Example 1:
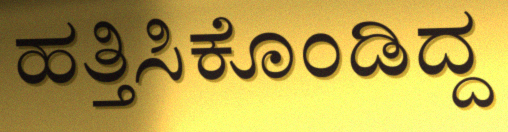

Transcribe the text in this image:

ಹತ್ತಿಸಿಕೊಂಡಿದ್ದ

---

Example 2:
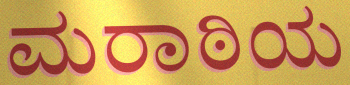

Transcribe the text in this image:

ಮರಾಠಿಯ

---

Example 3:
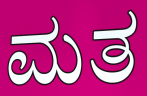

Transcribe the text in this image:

ಮತ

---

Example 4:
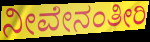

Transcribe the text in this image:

ನೀವೇನಂತೀರಿ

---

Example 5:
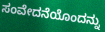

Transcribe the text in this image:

ಸಂವೇದನೆಯೊಂದನ್ನು